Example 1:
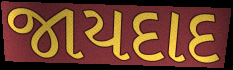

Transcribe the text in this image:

જાયદાદ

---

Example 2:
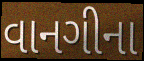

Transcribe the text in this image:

વાનગીના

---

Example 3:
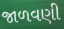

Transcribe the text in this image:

જાળવણી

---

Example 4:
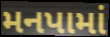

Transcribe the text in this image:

મનપામાં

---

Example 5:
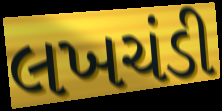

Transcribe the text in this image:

લખચંડી